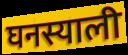
घनस्याली